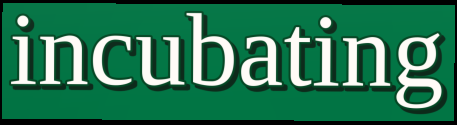
incubating